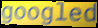
googled